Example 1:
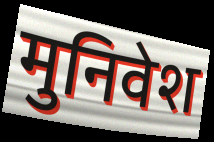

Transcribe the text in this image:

मुनिवेश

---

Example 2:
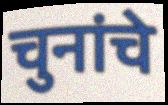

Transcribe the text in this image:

चुनांचे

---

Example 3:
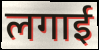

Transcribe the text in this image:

लगाई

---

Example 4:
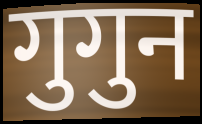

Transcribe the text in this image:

गुगुन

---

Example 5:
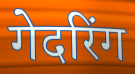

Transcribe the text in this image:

गेदरिंग